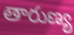
తారుణ్య